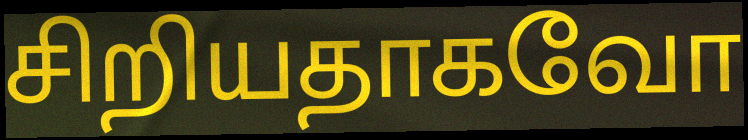
சிறியதாகவோ